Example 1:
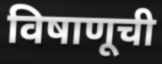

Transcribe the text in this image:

विषाणूची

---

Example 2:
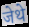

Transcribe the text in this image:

जेथे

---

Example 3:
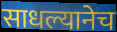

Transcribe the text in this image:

साधल्यानेच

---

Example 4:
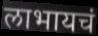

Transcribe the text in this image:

लाभायचं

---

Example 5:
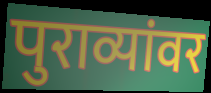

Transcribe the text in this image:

पुराव्यांवर